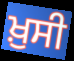
ਖ਼ੁਸੀ